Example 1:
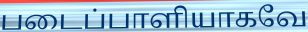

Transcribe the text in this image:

படைப்பாளியாகவே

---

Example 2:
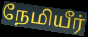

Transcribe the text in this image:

நேமியீர்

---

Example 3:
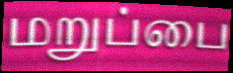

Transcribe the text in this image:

மறுப்பை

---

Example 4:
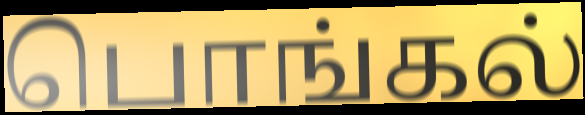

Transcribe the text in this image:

பொங்கல்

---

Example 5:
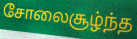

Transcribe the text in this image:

சோலைசூழ்ந்த